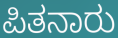
ಪಿತನಾರು